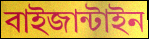
বাইজান্টাইন